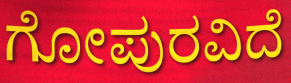
ಗೋಪುರವಿದೆ